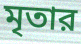
মৃতার